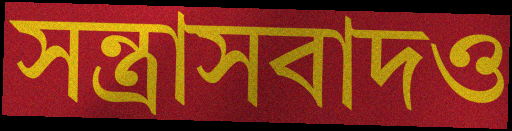
সন্ত্রাসবাদও